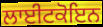
ਲਾਈਟਕੋਇਨ